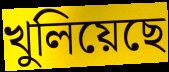
খুলিয়েছে